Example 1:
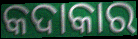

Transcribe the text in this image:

କଦାକାର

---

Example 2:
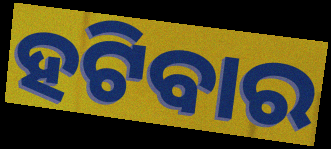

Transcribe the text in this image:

ହଟିବାର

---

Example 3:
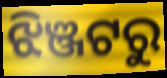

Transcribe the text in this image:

ଝିଞ୍ଜଟରୁ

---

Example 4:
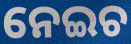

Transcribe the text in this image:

ନେଇଚ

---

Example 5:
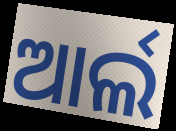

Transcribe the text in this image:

ଆର୍ଲ